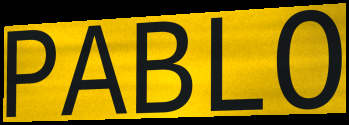
PABLO